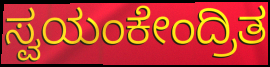
ಸ್ವಯಂಕೇಂದ್ರಿತ